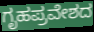
ಗೃಹಪ್ರವೇಶದ